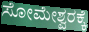
ಸೋಮೇಶ್ವರಕ್ಕೆ